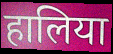
हालिया